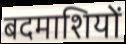
बदमाशियों